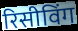
रिसीविंग